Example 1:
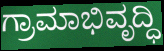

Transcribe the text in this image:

ಗ್ರಾಮಾಭಿವೃದ್ಧಿ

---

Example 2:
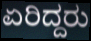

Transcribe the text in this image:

ಏರಿದ್ದರು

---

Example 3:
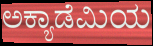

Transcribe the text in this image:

ಅಕ್ಯಾಡೆಮಿಯ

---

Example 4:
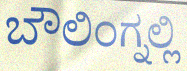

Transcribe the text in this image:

ಬೌಲಿಂಗ್ನಲ್ಲಿ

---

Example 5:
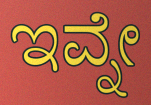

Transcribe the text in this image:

ಇವ್ನೇ